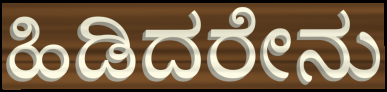
ಹಿಡಿದರೇನು